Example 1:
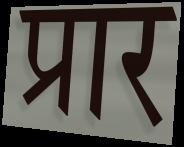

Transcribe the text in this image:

प्रार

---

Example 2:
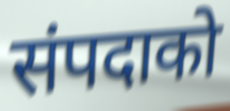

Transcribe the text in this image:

संपदाको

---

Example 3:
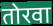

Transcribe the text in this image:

तोरवा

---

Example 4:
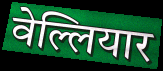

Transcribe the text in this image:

वेल्लियार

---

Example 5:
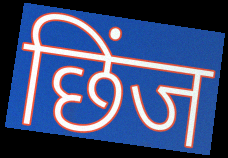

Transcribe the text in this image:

छिंज